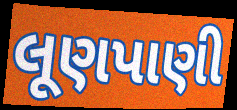
લૂણપાણી